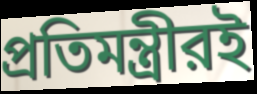
প্রতিমন্ত্রীরই